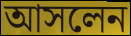
আসলেন